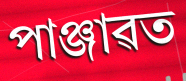
পাঞ্জাৱত